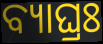
ବ୍ୟାଘ୍ରଃ